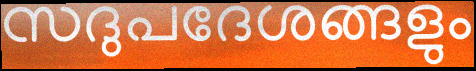
സദുപദേശങ്ങളും